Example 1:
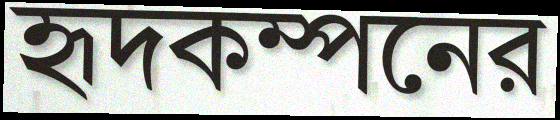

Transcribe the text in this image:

হৃদকম্পনের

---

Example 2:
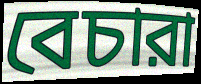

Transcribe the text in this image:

বেচারা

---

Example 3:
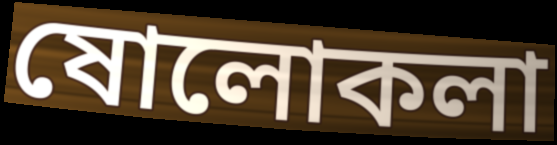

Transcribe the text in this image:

ষোলোকলা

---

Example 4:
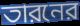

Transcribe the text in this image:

তারনের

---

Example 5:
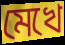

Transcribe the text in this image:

মেখে